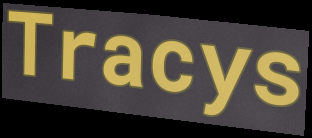
Tracys